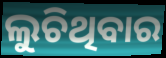
ଲୁଚିଥିବାର